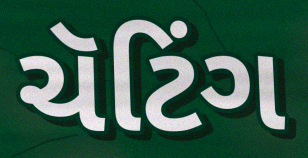
ચૅટિંગ